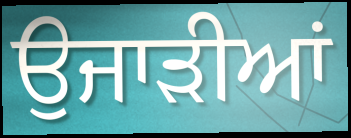
ਉਜਾੜੀਆਂ